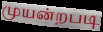
முயன்றபடி